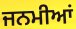
ਜਨਮੀਆਂ